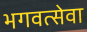
भगवत्सेवा